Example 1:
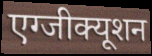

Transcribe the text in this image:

एग्जीक्यूशन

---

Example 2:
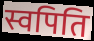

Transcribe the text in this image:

स्वपिति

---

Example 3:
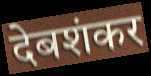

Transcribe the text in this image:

देबशंकर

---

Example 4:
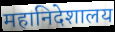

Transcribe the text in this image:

महानिदेशालय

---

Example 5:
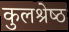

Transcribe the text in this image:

कुलश्रेष्‍ठ